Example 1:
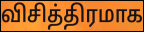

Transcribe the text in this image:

விசித்திரமாக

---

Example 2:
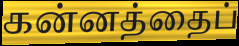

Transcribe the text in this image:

கன்னத்தைப்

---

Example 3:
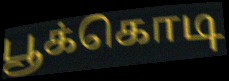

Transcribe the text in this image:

பூக்கொடி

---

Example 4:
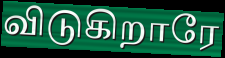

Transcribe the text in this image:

விடுகிறாரே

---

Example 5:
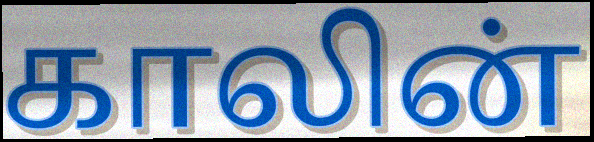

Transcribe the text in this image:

காலின்